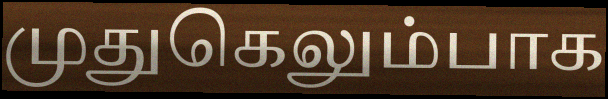
முதுகெலும்பாக